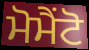
ਮੋਮੈਂਟੋ